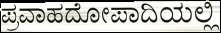
ಪ್ರವಾಹದೋಪಾದಿಯಲ್ಲಿ